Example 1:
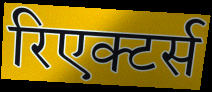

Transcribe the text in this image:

रिएक्टर्स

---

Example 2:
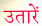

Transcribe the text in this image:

उतारें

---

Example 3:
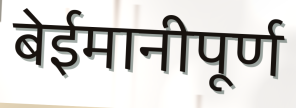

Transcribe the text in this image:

बेईमानीपूर्ण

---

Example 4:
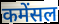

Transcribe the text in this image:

कमेंसल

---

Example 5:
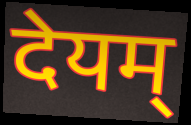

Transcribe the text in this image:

देयम्